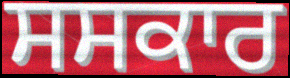
ਸਸਕਾਰ